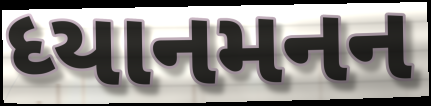
ધ્યાનમનન